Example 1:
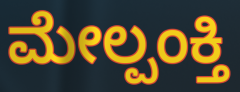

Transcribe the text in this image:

ಮೇಲ್ಪಂಕ್ತಿ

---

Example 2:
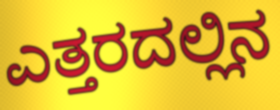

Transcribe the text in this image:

ಎತ್ತರದಲ್ಲಿನ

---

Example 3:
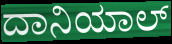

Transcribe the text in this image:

ದಾನಿಯಾಲ್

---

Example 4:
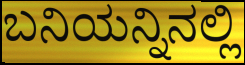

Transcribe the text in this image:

ಬನಿಯನ್ನಿನಲ್ಲಿ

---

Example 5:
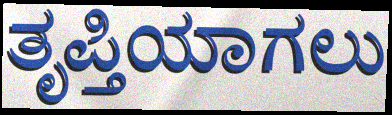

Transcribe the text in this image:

ತೃಪ್ತಿಯಾಗಲು